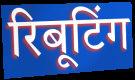
रिबूटिंग